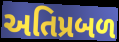
અતિપ્રબળ